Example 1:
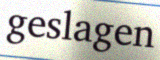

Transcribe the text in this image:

geslagen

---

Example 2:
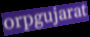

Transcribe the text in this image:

orpgujarat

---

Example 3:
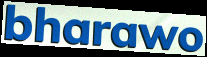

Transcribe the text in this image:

bharawo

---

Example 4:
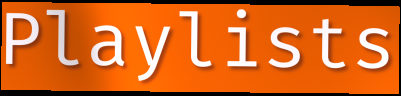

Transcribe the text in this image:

Playlists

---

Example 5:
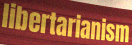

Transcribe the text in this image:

libertarianism